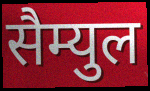
सैम्युल